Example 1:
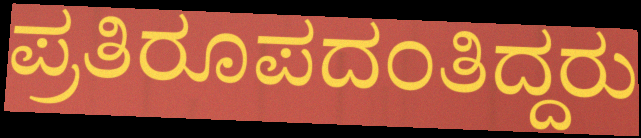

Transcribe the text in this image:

ಪ್ರತಿರೂಪದಂತಿದ್ದರು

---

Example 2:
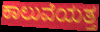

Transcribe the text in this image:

ಕಾಲುವೆಯತ್ತ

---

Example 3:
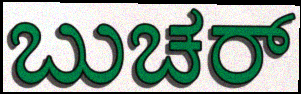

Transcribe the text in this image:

ಬುಚರ್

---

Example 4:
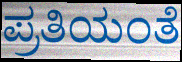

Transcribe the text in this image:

ಪ್ರತಿಯಂತೆ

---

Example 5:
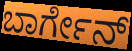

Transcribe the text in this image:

ಬಾರ್ಗೇನ್